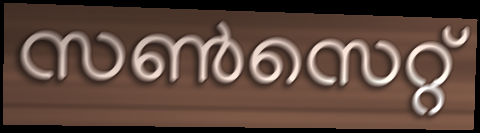
സൺസെറ്റ്